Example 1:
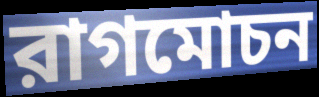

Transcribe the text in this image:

রাগমোচন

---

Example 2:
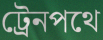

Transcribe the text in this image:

ট্রেনপথে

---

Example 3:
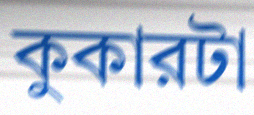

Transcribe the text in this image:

কুকারটা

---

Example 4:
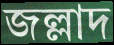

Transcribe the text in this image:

জল্লাদ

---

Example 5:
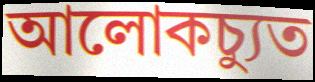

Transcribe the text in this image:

আলোকচ্যুত